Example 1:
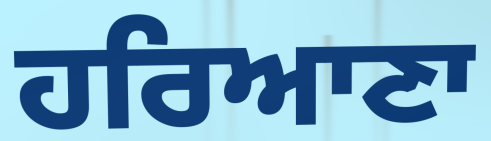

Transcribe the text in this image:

ਹਰਿਆਣਾ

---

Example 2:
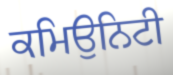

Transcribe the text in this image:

ਕਮਿਉਨਿਟੀ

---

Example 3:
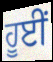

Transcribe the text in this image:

ਹੂਈਂ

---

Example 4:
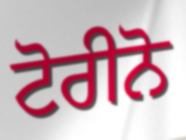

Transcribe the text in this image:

ਟੋਰੀਨੋ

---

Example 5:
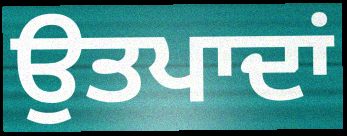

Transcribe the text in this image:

ਉਤਪਾਦਾਂ